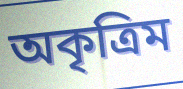
অকৃত্ৰিম